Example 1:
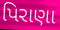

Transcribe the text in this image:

પિરાણા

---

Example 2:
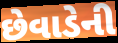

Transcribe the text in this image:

છેવાડેની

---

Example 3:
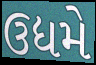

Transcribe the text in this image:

ઉદ્યમે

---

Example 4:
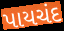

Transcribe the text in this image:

પાયચંદ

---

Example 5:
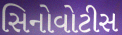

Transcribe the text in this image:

સિનોવોટીસ